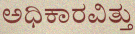
ಅಧಿಕಾರವಿತ್ತು